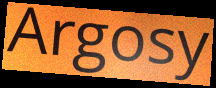
Argosy